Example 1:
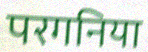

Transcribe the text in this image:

परगनिया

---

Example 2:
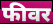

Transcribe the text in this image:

फीवर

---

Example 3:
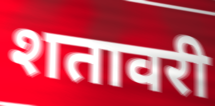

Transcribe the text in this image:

शतावरी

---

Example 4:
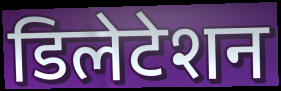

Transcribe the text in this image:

डिलेटेशन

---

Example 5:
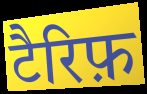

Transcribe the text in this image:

टैरिफ़